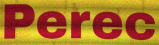
Perec